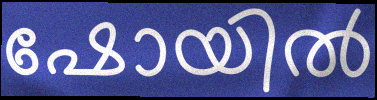
ഷോയിൽ